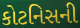
કોટનિસની